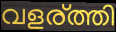
വളര്ത്തി